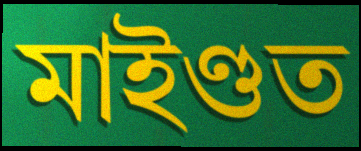
মাইণ্ডত